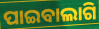
ପାଇବାଲାଗି